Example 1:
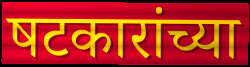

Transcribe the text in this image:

षटकारांच्या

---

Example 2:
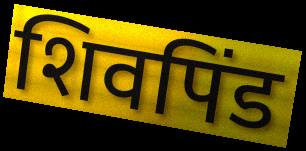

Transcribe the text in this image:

शिवपिंड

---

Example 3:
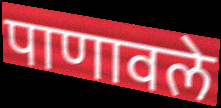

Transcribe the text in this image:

पाणावले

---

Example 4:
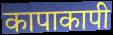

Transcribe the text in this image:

कापाकापी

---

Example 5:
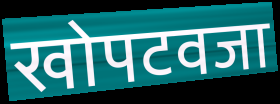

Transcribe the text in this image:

खोपटवजा